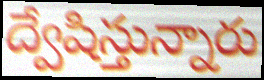
ద్వేషిస్తున్నారు